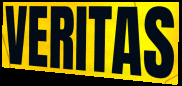
VERITAS